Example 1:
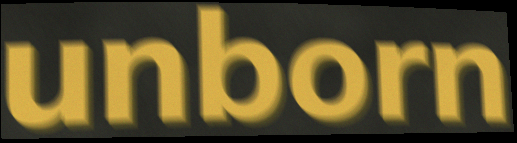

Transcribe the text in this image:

unborn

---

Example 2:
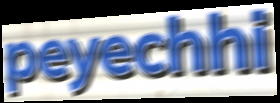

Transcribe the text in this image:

peyechhi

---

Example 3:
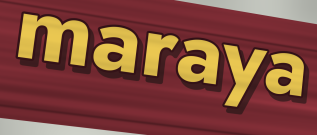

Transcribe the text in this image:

maraya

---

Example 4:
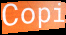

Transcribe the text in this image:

Copi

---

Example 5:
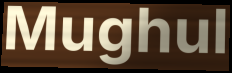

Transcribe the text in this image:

Mughul